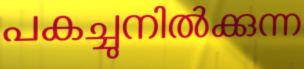
പകച്ചുനിൽക്കുന്ന